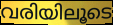
വരിയിലൂടെ